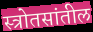
स्त्रोतसांतील